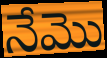
నేమొ